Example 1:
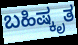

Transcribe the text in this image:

ಬಹಿಷ್ಕೃತ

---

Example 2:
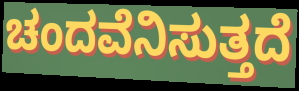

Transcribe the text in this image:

ಚಂದವೆನಿಸುತ್ತದೆ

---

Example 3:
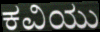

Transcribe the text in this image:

ಕವಿಯು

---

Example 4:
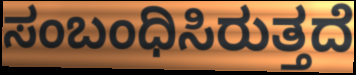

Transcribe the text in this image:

ಸಂಬಂಧಿಸಿರುತ್ತದೆ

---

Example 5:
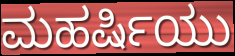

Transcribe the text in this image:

ಮಹರ್ಷಿಯು